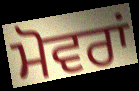
ਮੋਵਰਾਂ